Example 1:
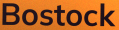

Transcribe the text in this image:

Bostock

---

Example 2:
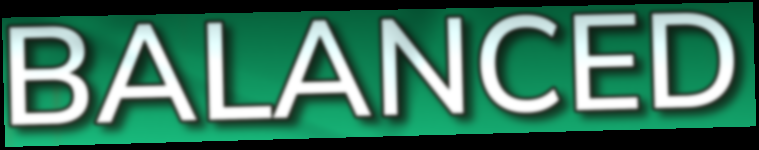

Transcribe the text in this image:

BALANCED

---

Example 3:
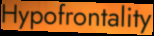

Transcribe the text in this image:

Hypofrontality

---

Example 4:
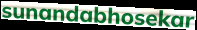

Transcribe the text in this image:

sunandabhosekar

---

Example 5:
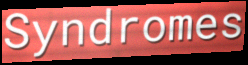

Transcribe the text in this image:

Syndromes